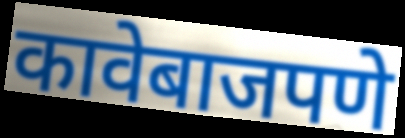
कावेबाजपणे